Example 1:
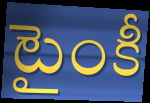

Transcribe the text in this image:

టైంకీ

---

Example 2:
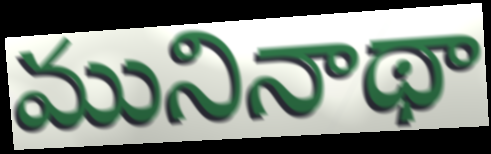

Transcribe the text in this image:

మునినాథా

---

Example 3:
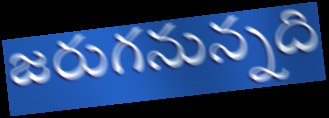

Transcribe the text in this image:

జరుగనున్నది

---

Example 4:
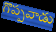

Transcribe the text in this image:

గొప్పవాడు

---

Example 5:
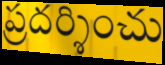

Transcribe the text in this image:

ప్రదర్శించు